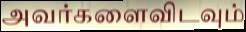
அவர்களைவிடவும்